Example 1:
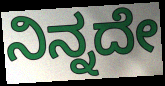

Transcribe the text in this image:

ನಿನ್ನದೇ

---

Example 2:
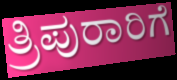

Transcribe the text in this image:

ತ್ರಿಪುರಾರಿಗೆ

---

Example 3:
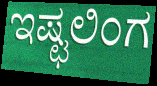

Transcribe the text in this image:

ಇಷ್ಟಲಿಂಗ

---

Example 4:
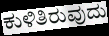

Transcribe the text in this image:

ಕುಳಿತಿರುವುದು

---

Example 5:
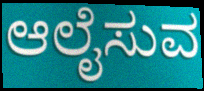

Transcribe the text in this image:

ಆಲೈಸುವ